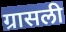
ग्रासली